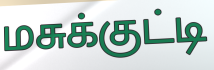
மசுக்குட்டி